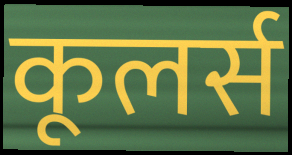
कूलर्स